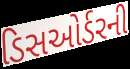
ડિસઓર્ડરની